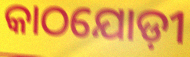
କାଠଯୋଡ଼ୀ